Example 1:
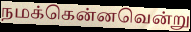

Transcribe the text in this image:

நமக்கென்னவென்று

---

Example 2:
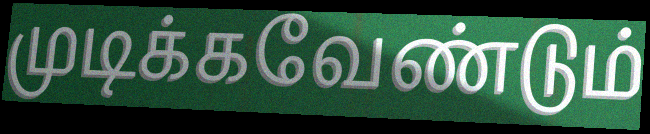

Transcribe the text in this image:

முடிக்கவேண்டும்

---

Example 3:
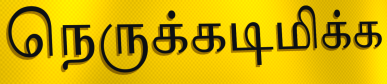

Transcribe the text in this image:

நெருக்கடிமிக்க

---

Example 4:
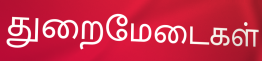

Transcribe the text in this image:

துறைமேடைகள்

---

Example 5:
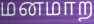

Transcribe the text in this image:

மனமாற